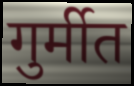
गुर्मीत